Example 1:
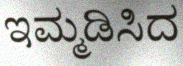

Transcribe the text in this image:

ಇಮ್ಮಡಿಸಿದ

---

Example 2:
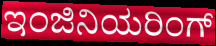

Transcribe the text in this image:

ಇಂಜಿನಿಯರಿಂಗ್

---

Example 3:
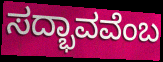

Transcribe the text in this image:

ಸದ್ಭಾವವೆಂಬ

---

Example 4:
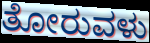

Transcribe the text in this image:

ತೋರುವಳು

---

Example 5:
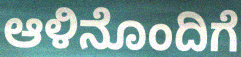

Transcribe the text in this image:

ಆಳಿನೊಂದಿಗೆ